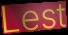
Lest